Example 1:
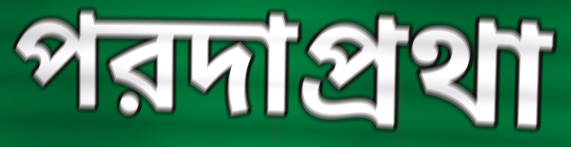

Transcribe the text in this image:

পরদাপ্রথা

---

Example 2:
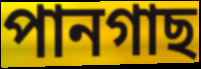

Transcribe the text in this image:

পানগাছ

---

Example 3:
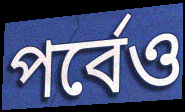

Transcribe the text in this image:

পর্বেও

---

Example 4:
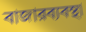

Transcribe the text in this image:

বাজারব্যবস্থা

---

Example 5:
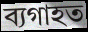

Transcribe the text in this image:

ব্যগাহত